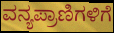
ವನ್ಯಪ್ರಾಣಿಗಳಿಗೆ